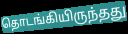
தொடங்கியிருந்தது